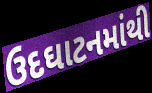
ઉદઘાટનમાંથી